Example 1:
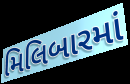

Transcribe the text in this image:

મિલિબારમાં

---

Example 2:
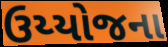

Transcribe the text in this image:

ઉય્યોજના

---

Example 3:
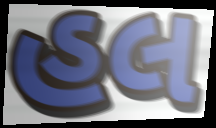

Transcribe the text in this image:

હલ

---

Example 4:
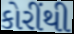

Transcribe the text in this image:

કોરીંથી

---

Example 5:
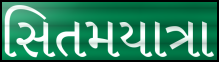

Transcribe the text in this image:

સિતમયાત્રા